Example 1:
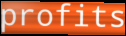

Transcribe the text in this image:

profits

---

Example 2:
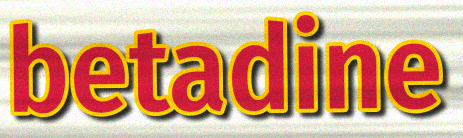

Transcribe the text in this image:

betadine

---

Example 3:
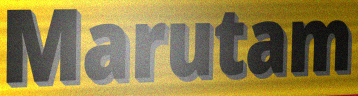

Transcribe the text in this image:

Marutam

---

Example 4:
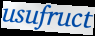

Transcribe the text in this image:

usufruct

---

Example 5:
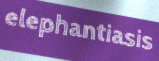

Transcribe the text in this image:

elephantiasis